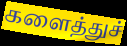
களைத்துச்